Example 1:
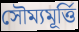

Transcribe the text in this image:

সৌম্যমূর্ত্তি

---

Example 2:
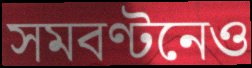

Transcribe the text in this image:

সমবণ্টনেও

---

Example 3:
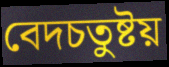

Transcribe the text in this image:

বেদচতুষ্টয়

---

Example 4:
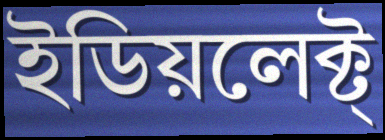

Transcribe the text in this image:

ইডিয়লেক্ট্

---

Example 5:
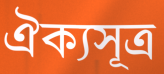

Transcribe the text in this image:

ঐক্যসূত্র